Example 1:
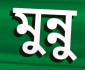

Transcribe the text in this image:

মুন্নু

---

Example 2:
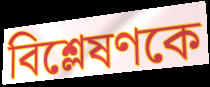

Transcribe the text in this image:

বিশ্লেষণকে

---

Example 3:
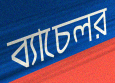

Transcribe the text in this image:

ব্যাচেলর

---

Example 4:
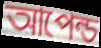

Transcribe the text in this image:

আপেন্ড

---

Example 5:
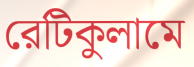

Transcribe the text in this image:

রেটিকুলামে